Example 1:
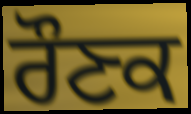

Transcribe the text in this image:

ਰੌਣਕ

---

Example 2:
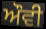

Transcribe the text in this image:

ਔਵੀ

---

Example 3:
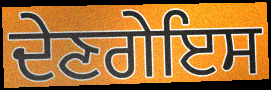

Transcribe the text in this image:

ਦੇਣਗੇਇਸ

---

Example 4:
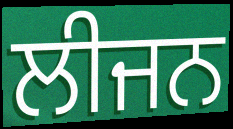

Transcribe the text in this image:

ਲੀਜਨ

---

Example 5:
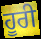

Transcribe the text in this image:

ਹੂਰੀ